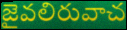
జైవలిరువాచ